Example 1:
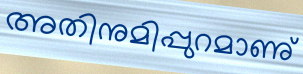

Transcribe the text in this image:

അതിനുമിപ്പുറമാണു്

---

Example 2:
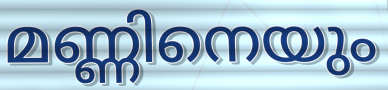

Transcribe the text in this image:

മണ്ണിനെയും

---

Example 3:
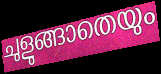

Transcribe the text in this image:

ചുളുങ്ങാതെയും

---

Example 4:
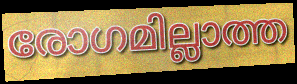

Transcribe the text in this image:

രോഗമില്ലാത്ത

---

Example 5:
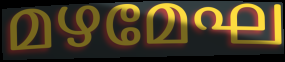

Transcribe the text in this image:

മഴമേഘ